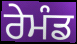
ਰੇਮੰਡ